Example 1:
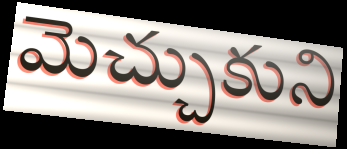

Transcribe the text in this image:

మెచ్చుకుని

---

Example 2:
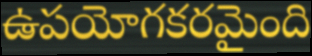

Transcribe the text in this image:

ఉపయోగకరమైంది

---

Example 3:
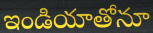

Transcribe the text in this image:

ఇండియాతోనూ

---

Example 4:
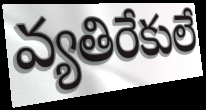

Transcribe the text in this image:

వ్యతిరేకులే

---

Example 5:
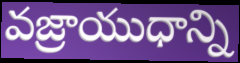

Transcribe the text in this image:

వజ్రాయుధాన్ని